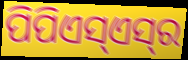
ପିପିଏସ୍ଏସ୍‌ର